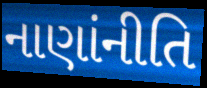
નાણાંનીતિ